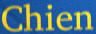
Chien